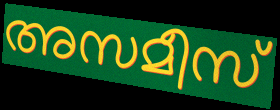
അസമീസ്